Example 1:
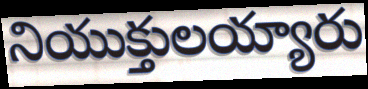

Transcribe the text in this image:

నియుక్తులయ్యారు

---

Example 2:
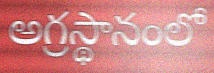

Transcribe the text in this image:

అగ్రస్థానంలో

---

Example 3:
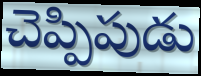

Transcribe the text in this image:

చెప్పిపుడు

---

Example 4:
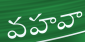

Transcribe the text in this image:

వహవా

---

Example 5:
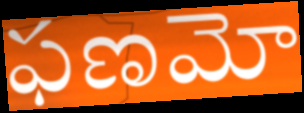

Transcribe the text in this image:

ఫణమో